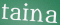
taina